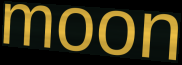
moon